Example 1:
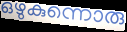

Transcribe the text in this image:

ഒഴുകുന്നൊരു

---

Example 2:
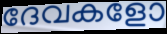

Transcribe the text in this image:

ദേവകളോ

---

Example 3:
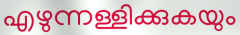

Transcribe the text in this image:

എഴുന്നള്ളിക്കുകയും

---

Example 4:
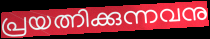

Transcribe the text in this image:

പ്രയത്നിക്കുന്നവനു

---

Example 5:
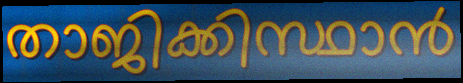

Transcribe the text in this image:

താജിക്കിസ്ഥാൻ